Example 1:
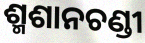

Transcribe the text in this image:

ଶ୍ମଶାନଚଣ୍ଡୀ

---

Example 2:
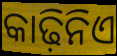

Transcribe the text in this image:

କାଢ଼ିନିଏ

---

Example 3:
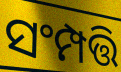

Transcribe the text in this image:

ସଂମ୍ପତ୍ତି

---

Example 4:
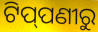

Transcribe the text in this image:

ଟିପ୍‌ପଣୀରୁ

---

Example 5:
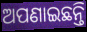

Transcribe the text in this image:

ଅପଣାଇଛନ୍ତି